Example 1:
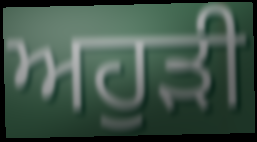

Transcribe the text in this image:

ਅਹੁੜੀ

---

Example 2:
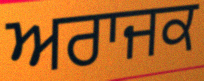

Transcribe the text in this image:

ਅਰਾਜਕ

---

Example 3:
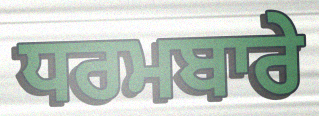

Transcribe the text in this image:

ਧਰਮਬਾਰੇ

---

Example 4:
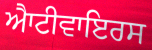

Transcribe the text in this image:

ਐਾਟੀਵਾਇਰਸ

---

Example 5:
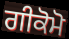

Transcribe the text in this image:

ਗੀਕੋਮੋ